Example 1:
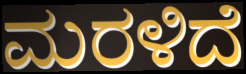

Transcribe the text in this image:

ಮರಳಿದೆ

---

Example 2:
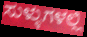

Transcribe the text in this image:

ಸುಳ್ಳುಗಳಲ್ಲಿ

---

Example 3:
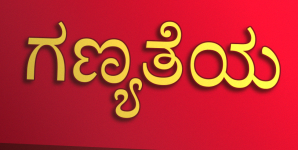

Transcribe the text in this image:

ಗಣ್ಯತೆಯ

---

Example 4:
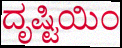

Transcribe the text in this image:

ದೃಷ್ಟಿಯಿಂ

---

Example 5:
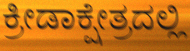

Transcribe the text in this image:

ಕ್ರೀಡಾಕ್ಷೇತ್ರದಲ್ಲಿ